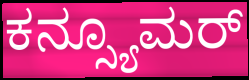
ಕನ್ಸ್ಯೂಮರ್